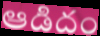
ఆడిదం